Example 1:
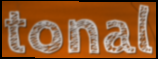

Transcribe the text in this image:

tonal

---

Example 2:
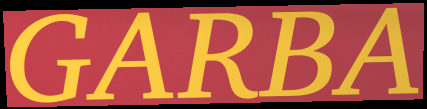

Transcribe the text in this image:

GARBA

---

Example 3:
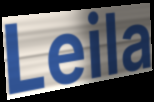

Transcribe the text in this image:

Leila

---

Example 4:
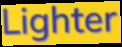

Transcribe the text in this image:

Lighter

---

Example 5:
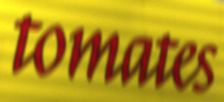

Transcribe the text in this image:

tomates